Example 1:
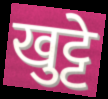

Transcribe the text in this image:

खुट्टे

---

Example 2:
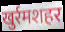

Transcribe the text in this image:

खुर्रमशहर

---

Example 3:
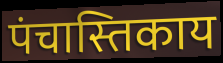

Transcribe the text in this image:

पंचास्तिकाय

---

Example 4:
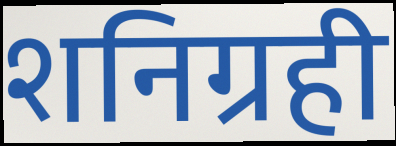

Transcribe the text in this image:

शनिग्रही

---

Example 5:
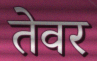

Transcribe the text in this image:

तेवर